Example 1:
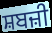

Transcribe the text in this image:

ਸ਼ਬਜ਼ੀ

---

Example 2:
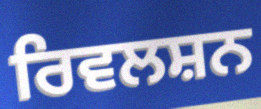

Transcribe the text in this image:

ਰਿਵਲਸ਼ਨ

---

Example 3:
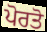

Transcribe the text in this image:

ਪੋਰਤੋ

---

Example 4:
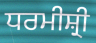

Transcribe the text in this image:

ਧਰਮੀਸ਼੍ਰੀ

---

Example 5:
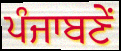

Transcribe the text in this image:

ਪੰਜਾਬਣੇਂ